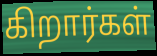
கிறார்கள்